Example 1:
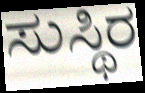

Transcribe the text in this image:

ಸುಸ್ಥಿರ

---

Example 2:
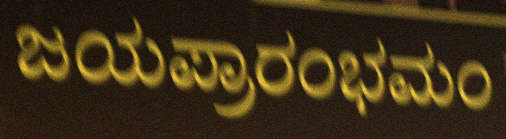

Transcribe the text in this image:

ಜಯಪ್ರಾರಂಭಮಂ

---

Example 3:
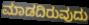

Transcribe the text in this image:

ಮಾಡದಿರುವುದು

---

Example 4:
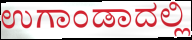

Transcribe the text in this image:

ಉಗಾಂಡಾದಲ್ಲಿ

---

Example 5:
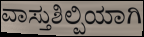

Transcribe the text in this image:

ವಾಸ್ತುಶಿಲ್ಪಿಯಾಗಿ